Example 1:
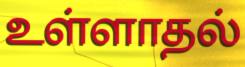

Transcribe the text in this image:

உள்ளாதல்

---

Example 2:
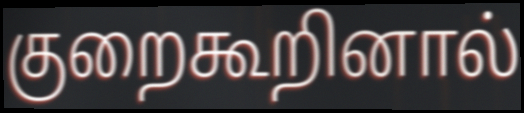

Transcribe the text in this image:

குறைகூறினால்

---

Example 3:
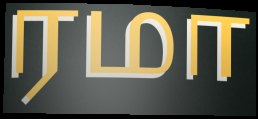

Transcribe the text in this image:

ரமா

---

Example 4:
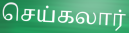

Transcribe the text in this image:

செய்கலார்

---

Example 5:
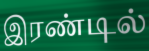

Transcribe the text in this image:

இரண்டில்